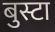
बुस्टा